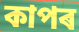
কাপৰ